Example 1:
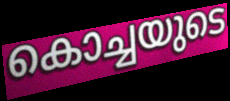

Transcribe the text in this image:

കൊച്ചയുടെ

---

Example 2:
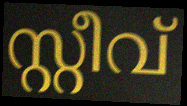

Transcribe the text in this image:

സ്റ്റീവ്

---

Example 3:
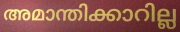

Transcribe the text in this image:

അമാന്തിക്കാറില്ല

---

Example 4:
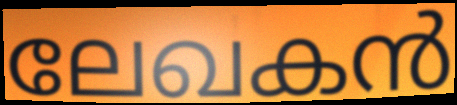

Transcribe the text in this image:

ലേഖകൻ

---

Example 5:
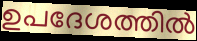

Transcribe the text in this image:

ഉപദേശത്തിൽ